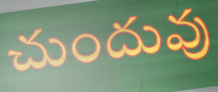
చుందువు